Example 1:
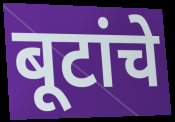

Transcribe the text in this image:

बूटांचे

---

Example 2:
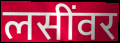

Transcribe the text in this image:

लसींवर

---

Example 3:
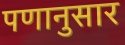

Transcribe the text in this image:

पणानुसार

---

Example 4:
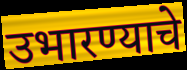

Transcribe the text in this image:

उभारण्याचे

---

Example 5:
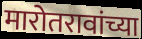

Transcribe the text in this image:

मारोतरावांच्या